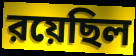
রয়েছিল